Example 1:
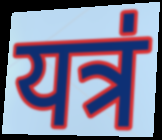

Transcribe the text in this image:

यत्र॑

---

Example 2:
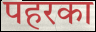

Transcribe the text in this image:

पहरका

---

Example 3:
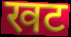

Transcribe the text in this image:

खट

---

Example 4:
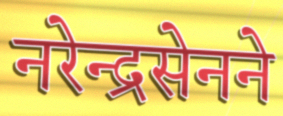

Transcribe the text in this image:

नरेन्द्रसेनने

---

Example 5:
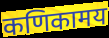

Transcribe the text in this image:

कणिकामय